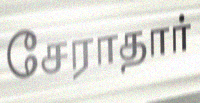
சேராதார்